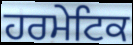
ਹਰਮੇਟਿਕ